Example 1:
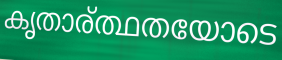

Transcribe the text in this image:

കൃതാര്ത്ഥതയോടെ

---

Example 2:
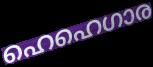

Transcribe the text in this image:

ഹെഹെഗാര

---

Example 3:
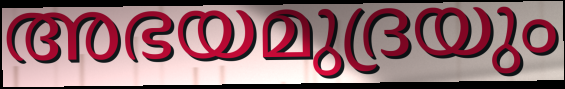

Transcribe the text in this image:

അഭയമുദ്രയും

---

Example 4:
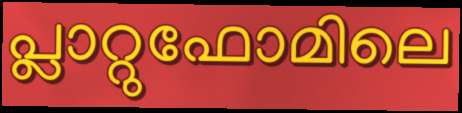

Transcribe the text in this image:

പ്ലാറ്റുഫോമിലെ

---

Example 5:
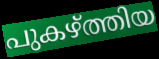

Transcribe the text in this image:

പുകഴ്ത്തിയ